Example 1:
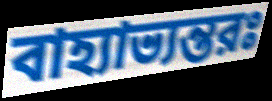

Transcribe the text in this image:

বাহ্যাভ্যন্তরঃ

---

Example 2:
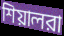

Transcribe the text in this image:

শিয়ালরা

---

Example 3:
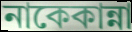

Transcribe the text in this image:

নাকেকান্না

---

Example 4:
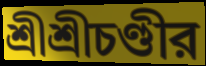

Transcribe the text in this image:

শ্রীশ্রীচণ্ডীর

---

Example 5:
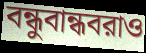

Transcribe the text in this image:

বন্ধুবান্ধবরাও